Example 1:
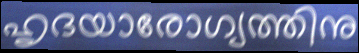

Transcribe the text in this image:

ഹൃദയാരോഗ്യത്തിനു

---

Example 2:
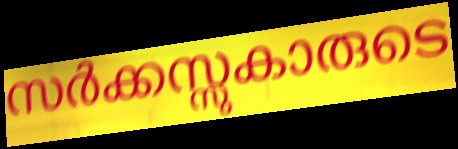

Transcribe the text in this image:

സർക്കസ്സുകാരുടെ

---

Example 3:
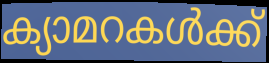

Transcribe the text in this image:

ക്യാമറകൾക്ക്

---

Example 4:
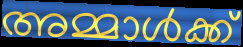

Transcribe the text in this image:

അമ്മാൾക്ക്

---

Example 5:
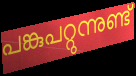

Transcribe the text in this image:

പങ്കുപറ്റുന്നുണ്ട്